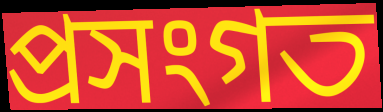
প্ৰসংগত